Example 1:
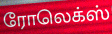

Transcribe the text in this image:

ரோலெக்ஸ்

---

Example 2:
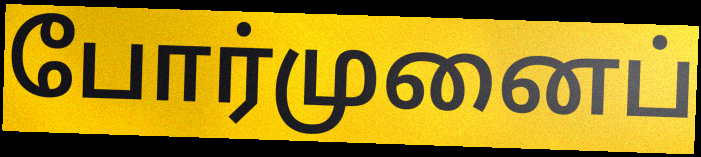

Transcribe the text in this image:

போர்முனைப்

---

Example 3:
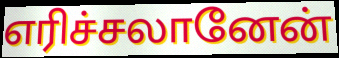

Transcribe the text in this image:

எரிச்சலானேன்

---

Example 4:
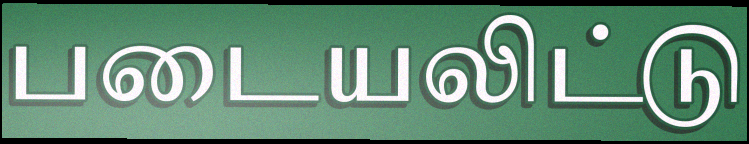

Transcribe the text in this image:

படையலிட்டு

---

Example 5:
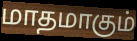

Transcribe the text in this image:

மாதமாகும்